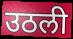
उठली